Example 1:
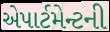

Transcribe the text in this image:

એપાર્ટમેન્ટની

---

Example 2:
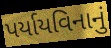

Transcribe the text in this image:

પર્યાયવિનાનું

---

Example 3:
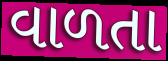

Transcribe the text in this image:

વાળતા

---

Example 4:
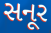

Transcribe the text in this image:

સનૂર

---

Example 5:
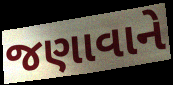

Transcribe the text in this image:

જણાવાને